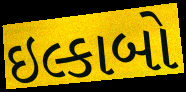
ઇલ્કાબો